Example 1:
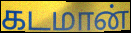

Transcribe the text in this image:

கடமான்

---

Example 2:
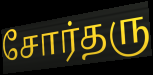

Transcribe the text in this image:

சோர்தரு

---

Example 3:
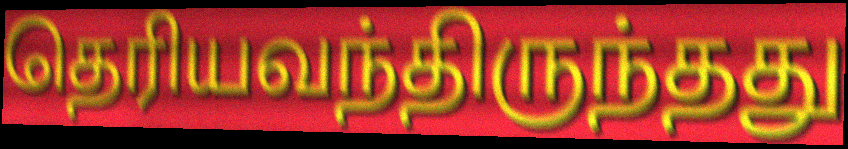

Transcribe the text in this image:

தெரியவந்திருந்தது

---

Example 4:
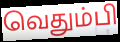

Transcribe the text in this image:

வெதும்பி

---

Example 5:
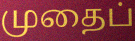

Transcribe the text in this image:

முதைப்